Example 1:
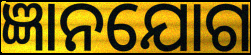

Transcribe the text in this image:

ଜ୍ଞାନଯୋଗ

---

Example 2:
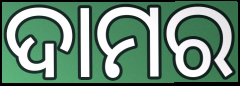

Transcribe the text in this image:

ଦାମର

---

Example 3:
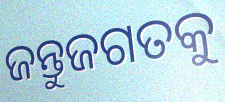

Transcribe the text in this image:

ଜନ୍ତୁଜଗତକୁ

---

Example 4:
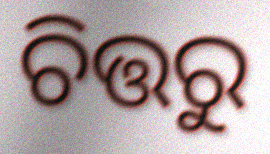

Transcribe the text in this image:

ଚିତ୍ତରୁ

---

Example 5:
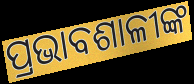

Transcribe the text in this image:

ପ୍ରଭାବଶାଳୀଙ୍କ